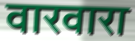
वारवारा